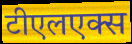
टीएलएक्स